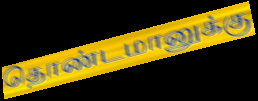
தொண்டமானுக்கு